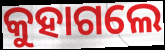
କୁହାଗଲେ